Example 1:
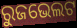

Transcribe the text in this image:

ରୁଜଭେଲଟ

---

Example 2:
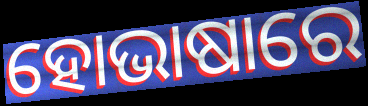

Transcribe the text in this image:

ହୋଭାଷାରେ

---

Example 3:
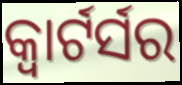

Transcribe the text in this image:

କ୍ବାର୍ଟର୍ସର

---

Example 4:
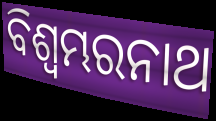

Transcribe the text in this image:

ବିଶ୍ୱମ୍ଭରନାଥ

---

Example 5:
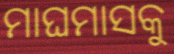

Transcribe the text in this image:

ମାଘମାସକୁ